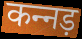
कन्‍नड़